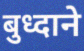
बुध्दाने